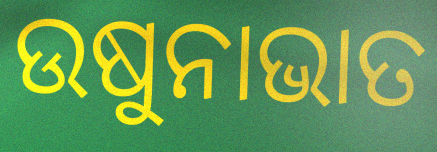
ଉଷୁନାଭାତ